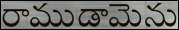
రాముడామెను